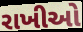
રાખીઓ